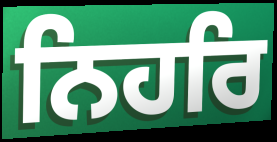
ਨਿਹਰਿ